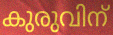
കുരുവിന്